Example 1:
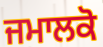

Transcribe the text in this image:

ਜਮਾਲਕੋ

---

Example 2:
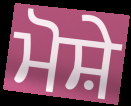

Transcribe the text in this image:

ਮੋਸ਼ੇ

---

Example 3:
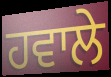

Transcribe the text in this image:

ਹਵਾਲੇ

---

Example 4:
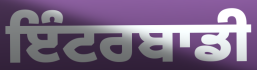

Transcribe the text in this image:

ਇੰਟਰਬਾਡੀ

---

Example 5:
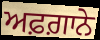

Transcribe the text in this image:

ਅਫ਼ਗ਼ਾਨੇ